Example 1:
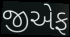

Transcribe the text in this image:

જીએફ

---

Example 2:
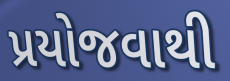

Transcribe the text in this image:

પ્રયોજવાથી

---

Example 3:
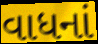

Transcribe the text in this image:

વાધનાં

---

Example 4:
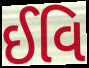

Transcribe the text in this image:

ઈવિ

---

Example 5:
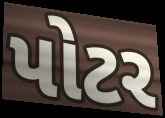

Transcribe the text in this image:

પોટર